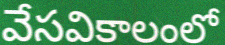
వేసవికాలంలో